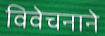
विवेचनाने